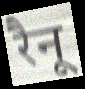
रैनू